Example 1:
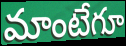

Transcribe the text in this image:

మాంటేగూ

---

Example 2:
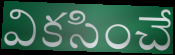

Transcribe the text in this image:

వికసించే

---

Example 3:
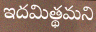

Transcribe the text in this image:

ఇదమిత్థమని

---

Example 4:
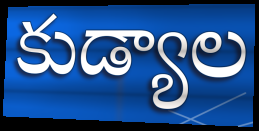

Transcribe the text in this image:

కుడ్యాల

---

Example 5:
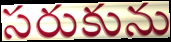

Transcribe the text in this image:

సరుకును